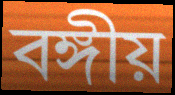
বঙ্গীয়